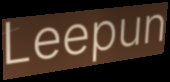
Leepun